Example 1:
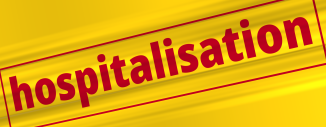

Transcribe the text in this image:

hospitalisation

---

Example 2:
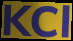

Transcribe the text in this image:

KCl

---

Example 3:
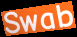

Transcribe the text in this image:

Swab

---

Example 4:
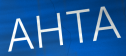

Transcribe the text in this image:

AHTA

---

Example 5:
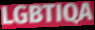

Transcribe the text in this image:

LGBTIQA